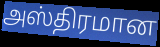
அஸ்திரமான